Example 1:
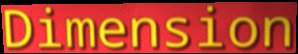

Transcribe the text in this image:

Dimension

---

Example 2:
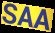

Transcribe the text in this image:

SAA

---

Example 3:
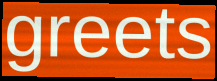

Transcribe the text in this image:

greets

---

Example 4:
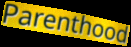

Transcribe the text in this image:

Parenthood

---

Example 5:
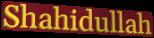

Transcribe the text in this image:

Shahidullah